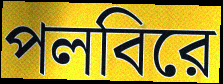
পলবিরে